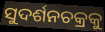
ସୁଦର୍ଶନଚକ୍ରକୁ